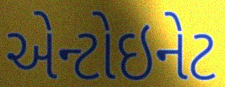
એન્ટોઇનેટ